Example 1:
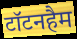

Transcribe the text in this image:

टॉटनहैम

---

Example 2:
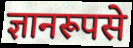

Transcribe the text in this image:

ज्ञानरूपसे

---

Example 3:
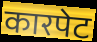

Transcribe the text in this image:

कारपेट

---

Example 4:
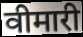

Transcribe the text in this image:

वीमारी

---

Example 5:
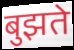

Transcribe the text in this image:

बुझते